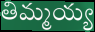
తిమ్మయ్య